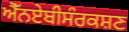
ਐੱਨਏਬੀਸੰਰਕਸ਼ਣ